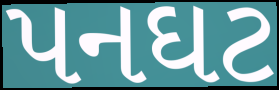
પનઘટ